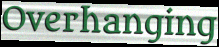
Overhanging